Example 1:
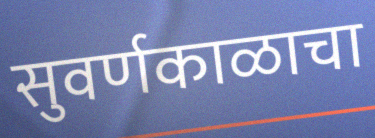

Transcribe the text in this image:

सुवर्णकाळाचा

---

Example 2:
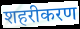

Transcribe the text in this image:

शहरीकरण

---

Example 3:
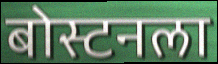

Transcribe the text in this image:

बोस्टनला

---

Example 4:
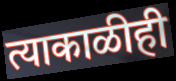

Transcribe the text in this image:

त्याकाळीही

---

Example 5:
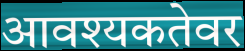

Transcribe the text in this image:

आवश्यकतेवर